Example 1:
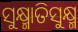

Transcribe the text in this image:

ସୁକ୍ଷ୍ମାତିସୁକ୍ଷ୍ମ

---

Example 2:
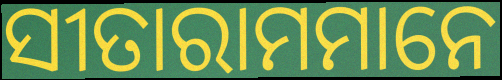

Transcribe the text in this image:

ସୀତାରାମମାନେ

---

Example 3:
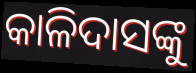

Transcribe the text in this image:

କାଳିଦାସଙ୍କୁ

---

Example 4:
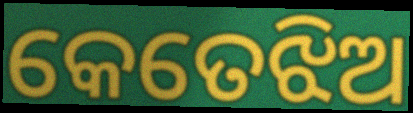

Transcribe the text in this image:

କେତେଝିଅ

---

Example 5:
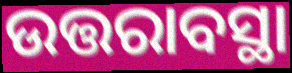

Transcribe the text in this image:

ଉତ୍ତରାବସ୍ଥା